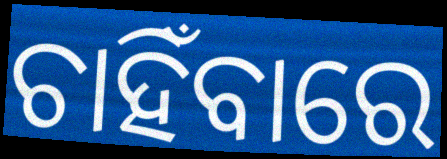
ଚାହିଁବାରେ